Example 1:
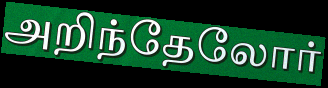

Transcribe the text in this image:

அறிந்தேலோர்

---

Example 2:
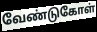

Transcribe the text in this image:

வேண்டுகோள்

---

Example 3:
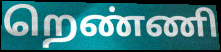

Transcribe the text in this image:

றெண்ணி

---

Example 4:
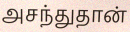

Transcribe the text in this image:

அசந்துதான்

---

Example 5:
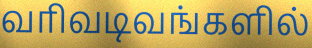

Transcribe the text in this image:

வரிவடிவங்களில்